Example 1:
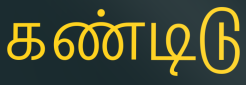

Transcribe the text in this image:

கண்டிடு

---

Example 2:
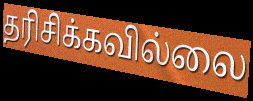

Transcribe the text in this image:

தரிசிக்கவில்லை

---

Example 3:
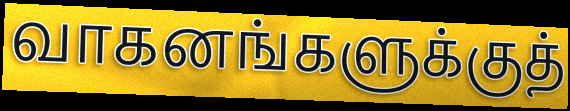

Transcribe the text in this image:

வாகனங்களுக்குத்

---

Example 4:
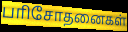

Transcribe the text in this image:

பரிசோதனைகள்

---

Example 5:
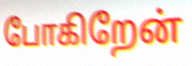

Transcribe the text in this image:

போகிறேன்